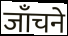
जाँचने